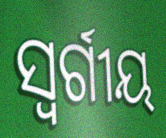
ସ୍ୱର୍ଗୀୟ